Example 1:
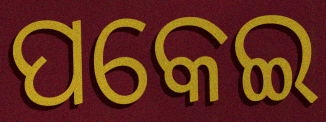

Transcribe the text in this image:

ପକେଇ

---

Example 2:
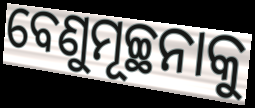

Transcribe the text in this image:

ବେଣୁମୂଚ୍ଛନାକୁ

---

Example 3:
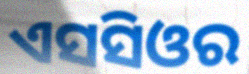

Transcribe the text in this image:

ଏସସିଓର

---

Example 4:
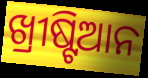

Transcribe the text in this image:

ଖ୍ରୀଷ୍ଟିଆନ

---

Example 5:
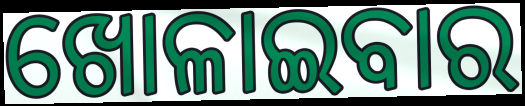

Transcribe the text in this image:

ଖୋଳାଇବାର